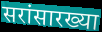
सरांसारख्या